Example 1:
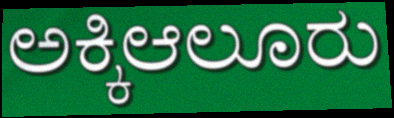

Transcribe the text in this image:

ಅಕ್ಕಿಆಲೂರು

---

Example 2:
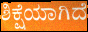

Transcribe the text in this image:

ಶಿಕ್ಷೆಯಾಗಿದೆ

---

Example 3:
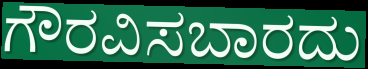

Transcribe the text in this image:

ಗೌರವಿಸಬಾರದು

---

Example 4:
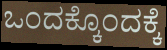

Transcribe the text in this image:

ಒಂದಕ್ಕೊಂದಕ್ಕೆ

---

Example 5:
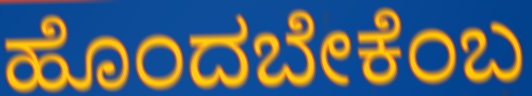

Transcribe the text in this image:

ಹೊಂದಬೇಕೆಂಬ